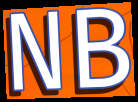
NB